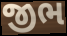
જીભ